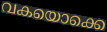
വകയൊക്കെ